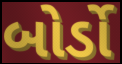
બોર્ડો